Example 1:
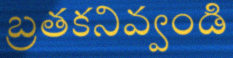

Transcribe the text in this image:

బ్రతకనివ్వండి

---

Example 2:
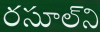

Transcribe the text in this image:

రసూల్‌ని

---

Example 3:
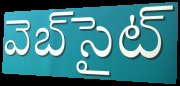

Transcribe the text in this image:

వెబ్‌సైట్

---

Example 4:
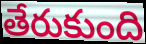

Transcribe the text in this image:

తేరుకుంది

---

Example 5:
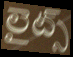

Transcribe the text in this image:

లైట్స్